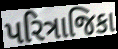
પરિત્રાજિકા